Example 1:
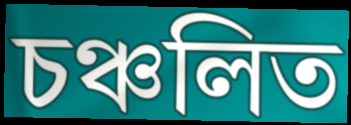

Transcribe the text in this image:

চঞ্চলিত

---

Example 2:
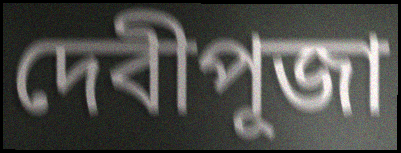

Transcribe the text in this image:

দেবীপূজা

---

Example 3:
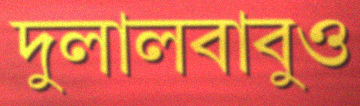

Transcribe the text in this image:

দুলালবাবুও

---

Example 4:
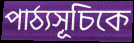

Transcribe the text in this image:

পাঠ্যসূচিকে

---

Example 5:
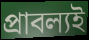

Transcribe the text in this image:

প্রাবল্যই